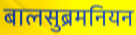
बालसुब्रमनियन